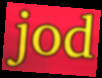
jod